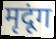
मृदूंग